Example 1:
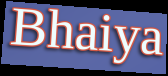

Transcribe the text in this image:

Bhaiya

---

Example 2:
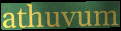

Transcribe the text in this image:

athuvum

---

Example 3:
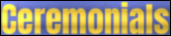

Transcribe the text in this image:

Ceremonials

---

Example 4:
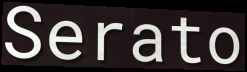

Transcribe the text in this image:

Serato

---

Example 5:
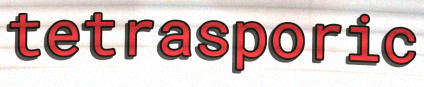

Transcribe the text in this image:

tetrasporic